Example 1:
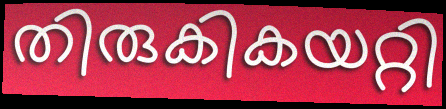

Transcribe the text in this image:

തിരുകികയറ്റി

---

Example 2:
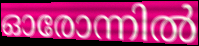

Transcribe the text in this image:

ഓരോന്നിൽ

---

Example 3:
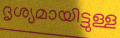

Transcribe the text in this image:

ദൃശ്യമായിട്ടുള്ള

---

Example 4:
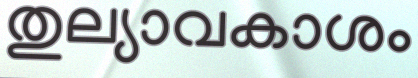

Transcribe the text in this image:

തുല്യാവകാശം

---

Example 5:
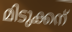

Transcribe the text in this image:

മിടുക്കന്